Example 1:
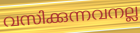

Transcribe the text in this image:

വസിക്കുന്നവനല്ല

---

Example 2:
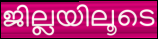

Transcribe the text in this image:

ജില്ലയിലൂടെ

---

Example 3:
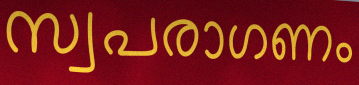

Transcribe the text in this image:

സ്വപരാഗണം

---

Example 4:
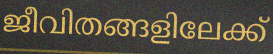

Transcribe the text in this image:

ജീവിതങ്ങളിലേക്ക്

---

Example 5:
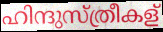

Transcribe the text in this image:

ഹിന്ദുസ്ത്രീകള്